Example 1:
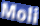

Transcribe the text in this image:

Moli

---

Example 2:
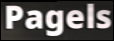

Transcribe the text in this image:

Pagels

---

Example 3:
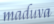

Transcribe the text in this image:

maduva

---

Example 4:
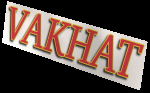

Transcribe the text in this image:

VAKHAT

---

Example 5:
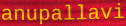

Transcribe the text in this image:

anupallavi